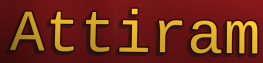
Attiram